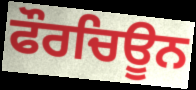
ਫੌਰਚਿਊਨ